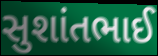
સુશાંતભાઈ